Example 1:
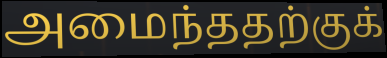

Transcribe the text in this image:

அமைந்ததற்குக்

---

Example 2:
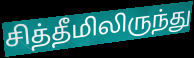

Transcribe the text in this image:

சித்தீமிலிருந்து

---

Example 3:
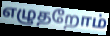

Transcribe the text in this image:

எழுதறோம்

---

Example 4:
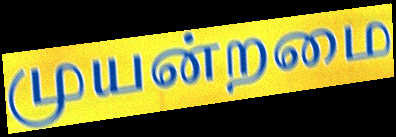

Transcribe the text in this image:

முயன்றமை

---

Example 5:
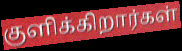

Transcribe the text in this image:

குளிக்கிறார்கள்